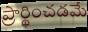
ప్రార్థించడమే